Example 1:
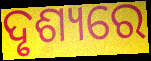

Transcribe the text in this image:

ଦୃଶ୍ୟରେ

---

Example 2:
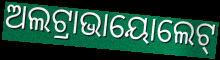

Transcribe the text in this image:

ଅଲଟ୍ରାଭାୟୋଲେଟ୍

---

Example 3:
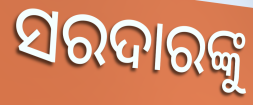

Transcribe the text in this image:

ସରଦାରଙ୍କୁ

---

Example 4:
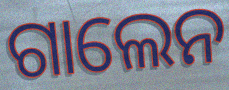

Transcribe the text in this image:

ଗାଲେନ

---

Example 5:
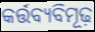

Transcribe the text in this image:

କର୍ତ୍ତବ୍ୟବିମୂଢ଼